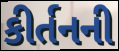
કીર્તનની